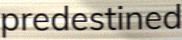
predestined